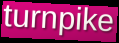
turnpike